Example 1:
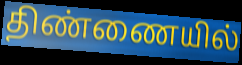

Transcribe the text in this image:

திண்ணையில்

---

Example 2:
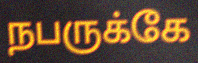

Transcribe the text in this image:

நபருக்கே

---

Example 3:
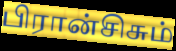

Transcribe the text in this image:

பிரான்சிசும்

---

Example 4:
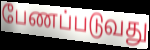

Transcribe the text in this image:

பேணப்படுவது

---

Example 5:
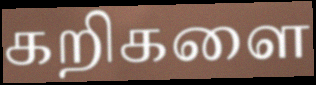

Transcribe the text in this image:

கறிகளை